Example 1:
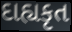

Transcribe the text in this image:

દાહ્યકૃત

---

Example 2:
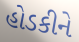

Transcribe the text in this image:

હોડકીને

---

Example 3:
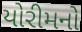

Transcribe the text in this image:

યોરીમનો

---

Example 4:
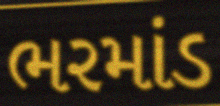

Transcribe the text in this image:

ભરમાંડ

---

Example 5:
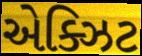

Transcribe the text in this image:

એક્ઝિટ